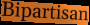
Bipartisan